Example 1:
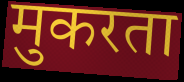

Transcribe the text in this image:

मुकरता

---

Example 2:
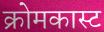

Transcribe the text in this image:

क्रोमकास्ट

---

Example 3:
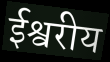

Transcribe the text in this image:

ईश्वरीय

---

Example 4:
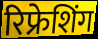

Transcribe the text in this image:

रिफ्रेशिंग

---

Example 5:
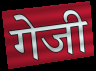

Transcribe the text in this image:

गेजी